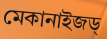
মেকানাইজড্